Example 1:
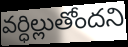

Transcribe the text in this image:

వర్ధిల్లుతోందని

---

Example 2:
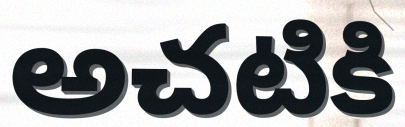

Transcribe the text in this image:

అచటికి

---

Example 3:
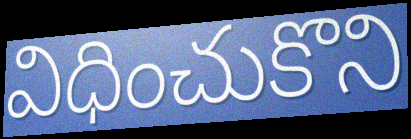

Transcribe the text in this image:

విధించుకొని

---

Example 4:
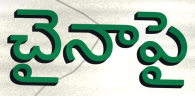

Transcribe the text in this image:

చైనాపై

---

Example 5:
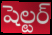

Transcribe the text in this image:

షెల్టర్